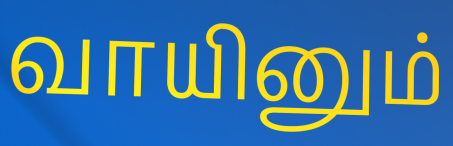
வாயினும்